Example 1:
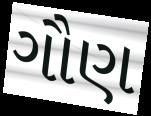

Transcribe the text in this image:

ગૌણ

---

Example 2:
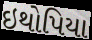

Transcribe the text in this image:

ઇથોપિયા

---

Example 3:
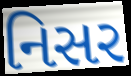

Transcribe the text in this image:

નિસર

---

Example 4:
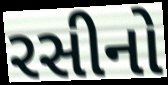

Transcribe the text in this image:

રસીનો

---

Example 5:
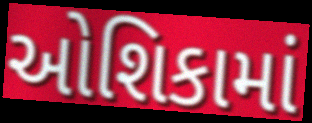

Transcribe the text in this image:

ઓશિકામાં